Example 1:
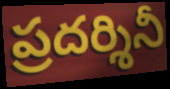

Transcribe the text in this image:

ప్రదర్శినీ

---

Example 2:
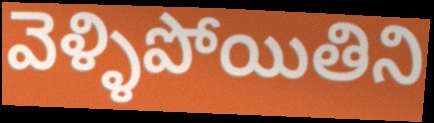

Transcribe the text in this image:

వెళ్ళిపోయితిని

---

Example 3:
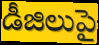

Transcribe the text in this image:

డీజిలుపై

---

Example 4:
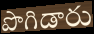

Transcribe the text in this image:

పొగిడారు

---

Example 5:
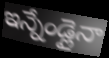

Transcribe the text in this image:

ఇన్నేండ్లైనా